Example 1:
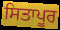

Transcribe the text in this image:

ਸਿਤਾਪੂਰ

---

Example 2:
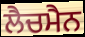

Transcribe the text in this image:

ਲੈਚਮੈਨ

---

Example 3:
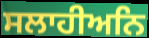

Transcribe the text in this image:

ਸਲਾਹੀਅਨਿ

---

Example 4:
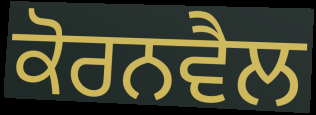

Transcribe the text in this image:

ਕੋਰਨਵੈਲ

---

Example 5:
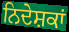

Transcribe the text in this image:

ਨਿਦੇਸ਼ਕਾਂ